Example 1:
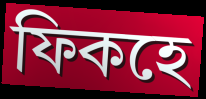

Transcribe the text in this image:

ফিকহে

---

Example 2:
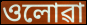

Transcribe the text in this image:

ওলোৱা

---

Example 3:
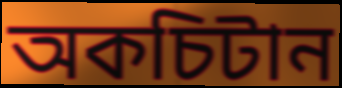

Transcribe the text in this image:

অকচিটান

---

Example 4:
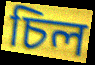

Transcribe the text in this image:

চিল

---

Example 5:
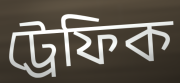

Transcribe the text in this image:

ট্ৰেফিক